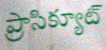
ప్రాసిక్యూట్